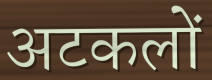
अटकलों